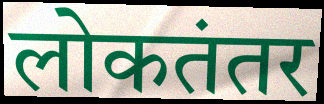
लोकतंतर